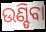
ଉଣ୍ଡିବା